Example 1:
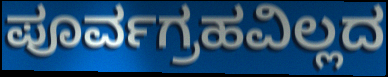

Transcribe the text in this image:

ಪೂರ್ವಗ್ರಹವಿಲ್ಲದ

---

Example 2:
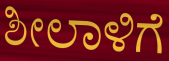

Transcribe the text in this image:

ಶೀಲಾಳಿಗೆ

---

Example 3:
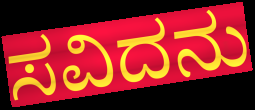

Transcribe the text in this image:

ಸವಿದನು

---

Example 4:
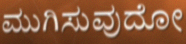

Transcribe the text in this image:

ಮುಗಿಸುವುದೋ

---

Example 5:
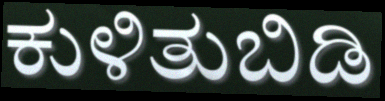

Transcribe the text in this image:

ಕುಳಿತುಬಿಡಿ